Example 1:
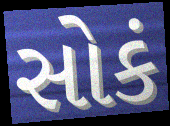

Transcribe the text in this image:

સોકં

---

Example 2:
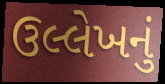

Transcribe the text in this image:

ઉલ્લેખનું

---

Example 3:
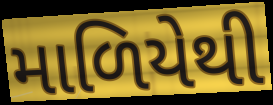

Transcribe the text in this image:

માળિયેથી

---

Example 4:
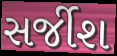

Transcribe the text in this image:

સર્જીશ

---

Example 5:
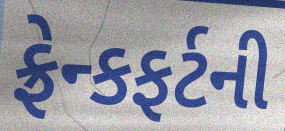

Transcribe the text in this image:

ફ્રેન્કફર્ટની